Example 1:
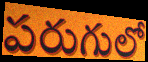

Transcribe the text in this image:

పరుగులో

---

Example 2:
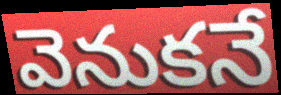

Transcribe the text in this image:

వెనుకనే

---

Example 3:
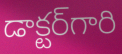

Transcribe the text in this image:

డాక్టర్‌గారి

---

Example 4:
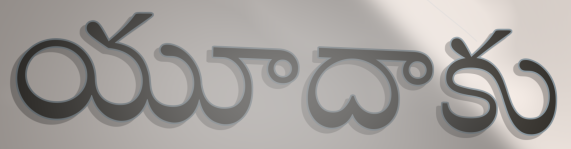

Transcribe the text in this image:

యూదాకు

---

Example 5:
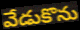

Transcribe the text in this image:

వేడుకొను